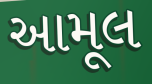
આમૂલ